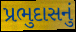
પ્રભુદાસનું